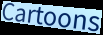
Cartoons